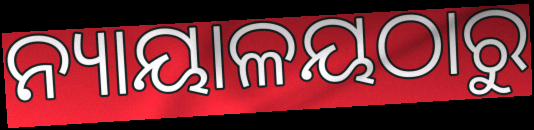
ନ୍ୟାୟାଳୟଠାରୁ